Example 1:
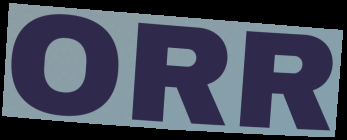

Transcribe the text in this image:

ORR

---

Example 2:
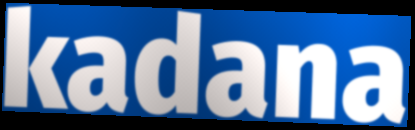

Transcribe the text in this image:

kadana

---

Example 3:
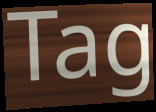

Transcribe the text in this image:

Tag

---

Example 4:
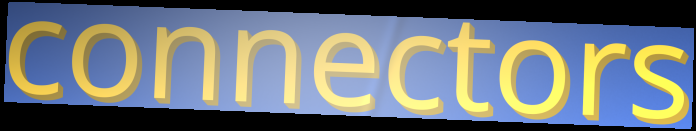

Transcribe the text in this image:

connectors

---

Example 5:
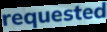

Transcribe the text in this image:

requested